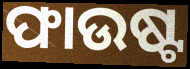
ଫାଉଷ୍ଟ